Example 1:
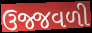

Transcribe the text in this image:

ઉજ્જવળી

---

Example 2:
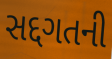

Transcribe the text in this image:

સદ્દગતની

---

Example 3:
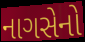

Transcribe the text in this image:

નાગસેનો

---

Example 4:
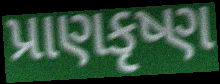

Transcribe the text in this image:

પ્રાણકૃષ્ણ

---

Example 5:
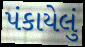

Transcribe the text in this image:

પંકાયેલું